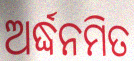
ଅର୍ଦ୍ଧନମିତ